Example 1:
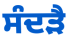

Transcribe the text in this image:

ਸੰਦੜੈ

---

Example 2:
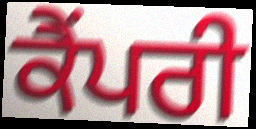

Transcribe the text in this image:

ਕੈਂਪਰੀ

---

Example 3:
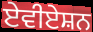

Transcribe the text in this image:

ਏਵੀਏਸ਼ਨ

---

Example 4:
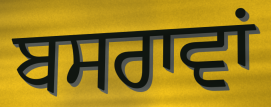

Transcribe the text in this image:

ਬਸਰਾਵਾਂ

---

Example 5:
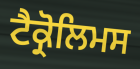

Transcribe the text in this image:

ਟੈਕ੍ਰੋਲਿਮਸ